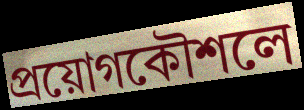
প্রয়োগকৌশলে